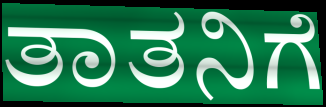
ತಾತನಿಗೆ